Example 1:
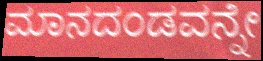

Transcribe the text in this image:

ಮಾನದಂಡವನ್ನೇ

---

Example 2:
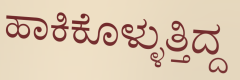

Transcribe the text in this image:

ಹಾಕಿಕೊಳ್ಳುತ್ತಿದ್ದ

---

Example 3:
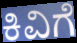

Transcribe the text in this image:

ಕಿವಿಗೆ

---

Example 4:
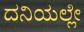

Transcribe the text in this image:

ದನಿಯಲ್ಲೇ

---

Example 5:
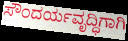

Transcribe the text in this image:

ಸೌಂದರ್ಯವೃದ್ಧಿಗಾಗಿ